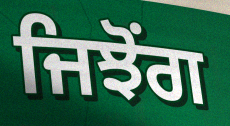
ਜਿਝੋਂਗ